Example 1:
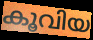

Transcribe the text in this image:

കൂവിയ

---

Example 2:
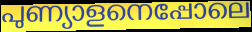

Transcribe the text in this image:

പുണ്യാളനെപ്പോലെ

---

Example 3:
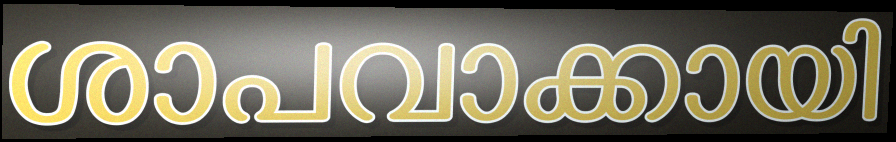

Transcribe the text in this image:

ശാപവാക്കായി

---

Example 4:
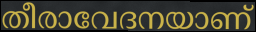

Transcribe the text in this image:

തീരാവേദനയാണ്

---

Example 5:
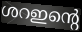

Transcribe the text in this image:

ശറഇന്റെ